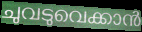
ചുവടുവെക്കാൻ